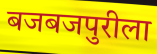
बजबजपुरीला